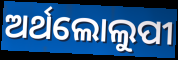
ଅର୍ଥଲୋଲୁପୀ